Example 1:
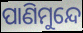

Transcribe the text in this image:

ପାଣିମୁନ୍ଦେ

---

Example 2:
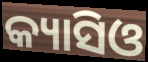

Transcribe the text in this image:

କ୍ୟାସିଓ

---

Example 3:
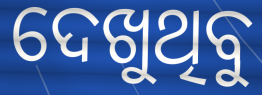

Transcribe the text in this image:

ଦେଖୁଥିବୁ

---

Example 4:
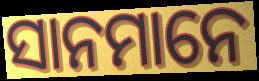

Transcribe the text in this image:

ସାନମାନେ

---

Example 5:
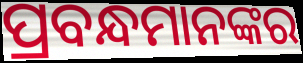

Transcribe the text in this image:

ପ୍ରବନ୍ଧମାନଙ୍କର